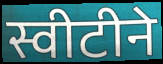
स्वीटीने